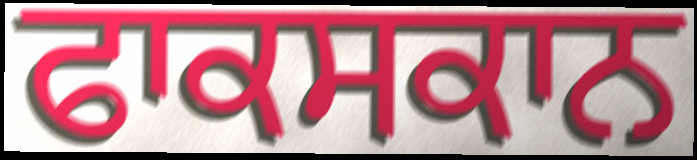
ਫਾਕਸਕਾਨ